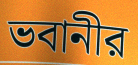
ভবানীর